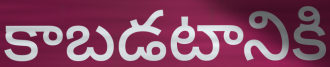
కాబడటానికి